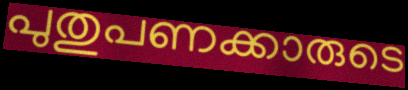
പുതുപണക്കാരുടെ